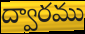
ద్వారము